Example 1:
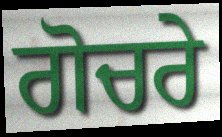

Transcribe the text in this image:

ਗੋਚਰੇ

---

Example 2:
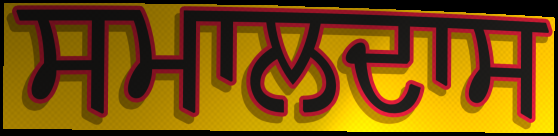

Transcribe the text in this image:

ਸਮਾਲਦਾਸ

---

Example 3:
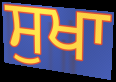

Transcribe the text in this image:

ਸੁਖਾ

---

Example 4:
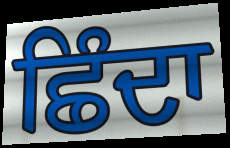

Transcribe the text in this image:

ਛਿੰਦਾ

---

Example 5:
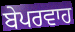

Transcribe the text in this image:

ਬੇਪਰਵਾਹ